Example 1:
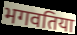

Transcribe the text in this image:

भगवतिया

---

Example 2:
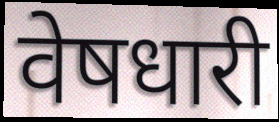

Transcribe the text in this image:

वेषधारी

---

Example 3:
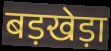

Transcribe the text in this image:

बड़खेड़ा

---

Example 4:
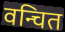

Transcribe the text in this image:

वन्चित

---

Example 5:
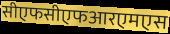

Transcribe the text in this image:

सीएफसीएफआरएमएस